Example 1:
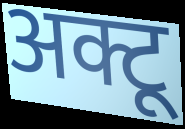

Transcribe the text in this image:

अक्टू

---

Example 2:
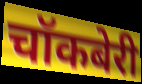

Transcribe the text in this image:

चॉकबेरी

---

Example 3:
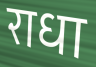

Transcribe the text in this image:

राधा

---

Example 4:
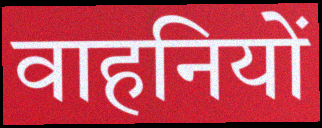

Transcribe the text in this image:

वाहनियों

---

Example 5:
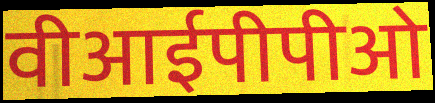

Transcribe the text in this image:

वीआईपीपीओ